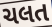
ચલત